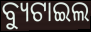
ବ୍ୟୁଟାଇଲ